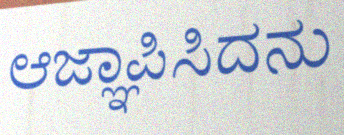
ಆಜ್ಞಾಪಿಸಿದನು